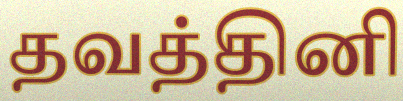
தவத்தினி